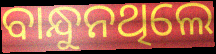
ବାନ୍ଧୁନଥିଲେ